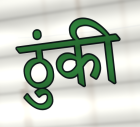
ठुंकी